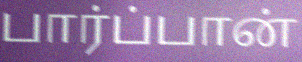
பார்ப்பான்